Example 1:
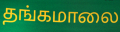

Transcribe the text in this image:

தங்கமாலை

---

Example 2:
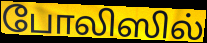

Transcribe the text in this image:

போலிஸில்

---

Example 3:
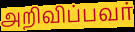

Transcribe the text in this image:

அறிவிப்பவர்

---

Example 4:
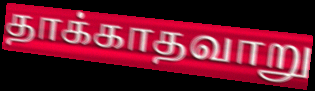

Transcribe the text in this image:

தாக்காதவாறு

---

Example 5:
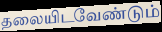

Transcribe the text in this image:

தலையிடவேண்டும்